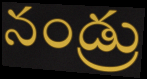
నండ్రు